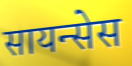
सायन्सेस